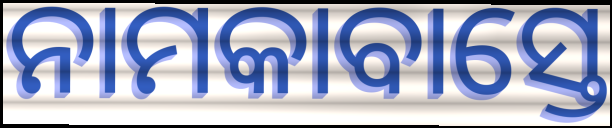
ନାମକାବାସ୍ତେ